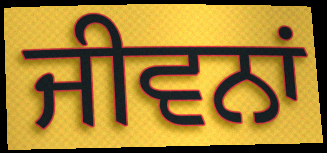
ਜੀਵਨਾਂ